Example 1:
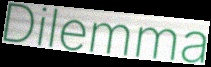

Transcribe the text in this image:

Dilemma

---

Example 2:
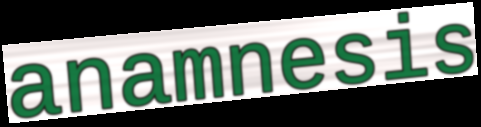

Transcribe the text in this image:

anamnesis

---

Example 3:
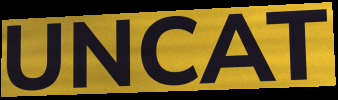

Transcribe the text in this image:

UNCAT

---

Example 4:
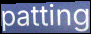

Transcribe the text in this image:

patting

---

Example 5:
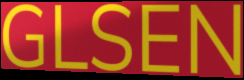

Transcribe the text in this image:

GLSEN